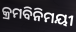
କ୍ରମବିନିମୟୀ